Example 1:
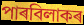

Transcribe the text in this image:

পাৰবিলাকৰ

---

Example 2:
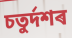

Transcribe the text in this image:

চতুৰ্দশৰ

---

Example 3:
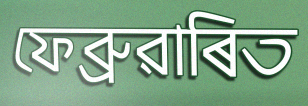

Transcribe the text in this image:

ফেব্ৰুৱাৰিত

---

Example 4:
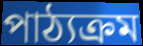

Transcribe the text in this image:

পাঠ্যক্ৰম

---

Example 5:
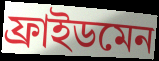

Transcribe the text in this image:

ফ্ৰাইডমেন